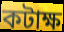
কটাক্ষ